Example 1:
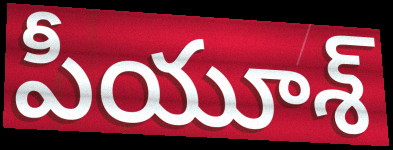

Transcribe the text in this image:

పీయూశ్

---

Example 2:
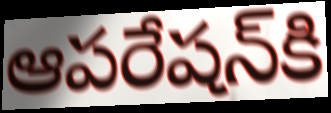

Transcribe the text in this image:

ఆపరేషన్‌కి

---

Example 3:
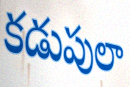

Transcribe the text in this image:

కడుపులా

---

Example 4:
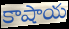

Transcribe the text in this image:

కాషాయ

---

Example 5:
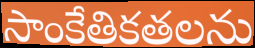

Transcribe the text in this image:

సాంకేతికతలను